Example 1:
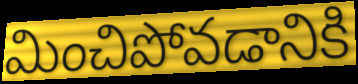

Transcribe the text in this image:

మించిపోవడానికి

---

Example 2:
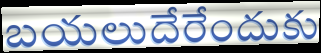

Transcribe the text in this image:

బయలుదేరేందుకు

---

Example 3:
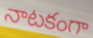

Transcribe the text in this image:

నాటకంగా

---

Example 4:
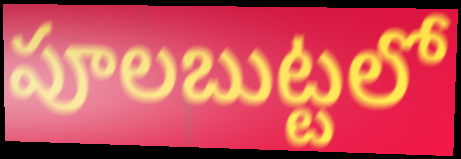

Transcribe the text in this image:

పూలబుట్టలో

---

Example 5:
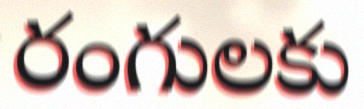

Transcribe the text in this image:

రంగులకు